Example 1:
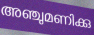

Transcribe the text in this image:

അഞ്ചുമണിക്കു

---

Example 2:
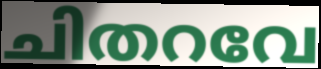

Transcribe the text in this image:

ചിതറവേ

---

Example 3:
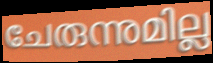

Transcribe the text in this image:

ചേരുന്നുമില്ല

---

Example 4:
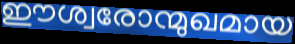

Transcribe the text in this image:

ഈശ്വരോന്മുഖമായ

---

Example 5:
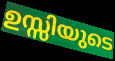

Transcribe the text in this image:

ഉസ്സിയുടെ